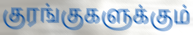
குரங்குகளுக்கும்